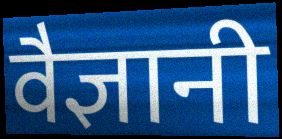
वैज्ञानी